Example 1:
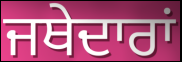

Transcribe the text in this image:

ਜਥੇਦਾਰਾਂ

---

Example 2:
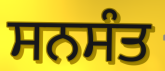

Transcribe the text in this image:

ਸਨਸੰਤ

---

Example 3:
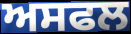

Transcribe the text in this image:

ਅਸਫਲ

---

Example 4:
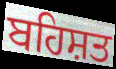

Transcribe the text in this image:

ਬਹਿਸ਼ਤ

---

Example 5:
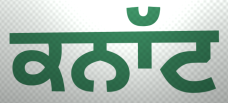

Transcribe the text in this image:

ਕਨਾੱਟ